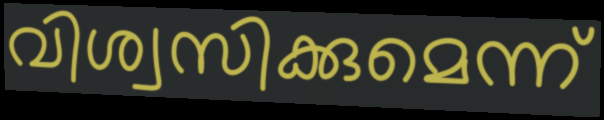
വിശ്വസിക്കുമെന്ന്